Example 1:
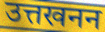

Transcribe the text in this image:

उत्तखनन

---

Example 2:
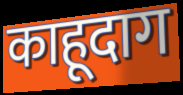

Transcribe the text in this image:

काहूदाग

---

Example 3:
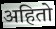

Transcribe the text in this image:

अहितो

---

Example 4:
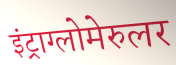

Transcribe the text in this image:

इंट्राग्लोमेरुलर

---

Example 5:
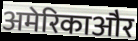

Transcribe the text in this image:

अमेरिकाऔर